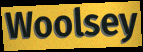
Woolsey